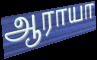
ஆராயா